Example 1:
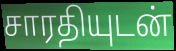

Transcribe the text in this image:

சாரதியுடன்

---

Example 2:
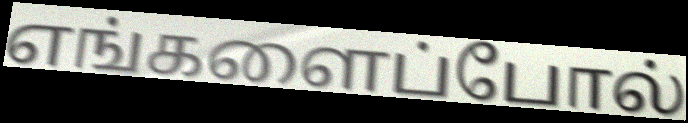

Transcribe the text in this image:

எங்களைப்போல்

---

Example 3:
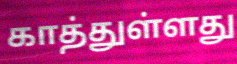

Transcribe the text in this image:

காத்துள்ளது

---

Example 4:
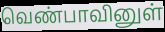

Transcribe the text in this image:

வெண்பாவினுள்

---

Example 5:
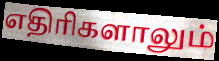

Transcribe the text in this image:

எதிரிகளாலும்